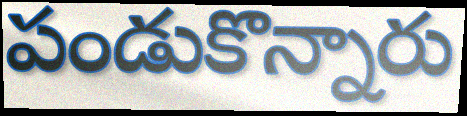
పండుకొన్నారు